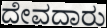
ದೇವದಾರು